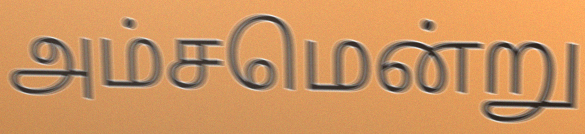
அம்சமென்று